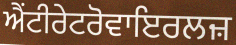
ਐਂਟੀਰੇਟਰੋਵਾਇਰਲਜ਼